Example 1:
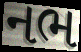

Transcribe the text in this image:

નભ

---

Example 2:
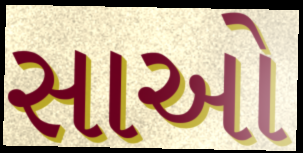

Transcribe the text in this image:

સાઓ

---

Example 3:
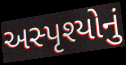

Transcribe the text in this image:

અસ્પૃશ્યોનું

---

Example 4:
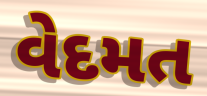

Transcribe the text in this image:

વેદમત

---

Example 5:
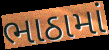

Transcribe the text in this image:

ભાઠામાં